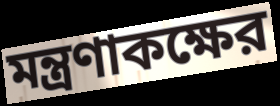
মন্ত্রণাকক্ষের